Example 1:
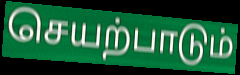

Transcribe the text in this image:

செயற்பாடும்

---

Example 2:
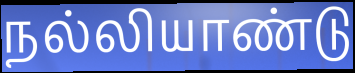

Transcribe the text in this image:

நல்லியாண்டு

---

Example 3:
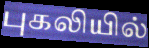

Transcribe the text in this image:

புகலியில்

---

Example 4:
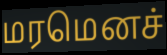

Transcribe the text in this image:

மரமெனச்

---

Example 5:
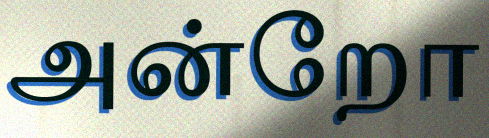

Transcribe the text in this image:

அன்றோ